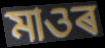
মাওৰ